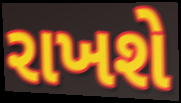
રાખશે